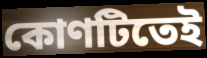
কোণটিতেই